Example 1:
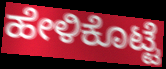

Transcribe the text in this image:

ಹೇಳಿಕೊಟ್ಟೆ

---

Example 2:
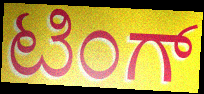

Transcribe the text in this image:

ಟಿಂಗ್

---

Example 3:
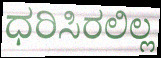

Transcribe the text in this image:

ಧರಿಸಿರಲಿಲ್ಲ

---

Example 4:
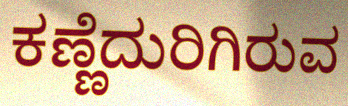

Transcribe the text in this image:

ಕಣ್ಣೆದುರಿಗಿರುವ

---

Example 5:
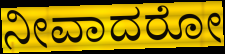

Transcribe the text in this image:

ನೀವಾದರೋ